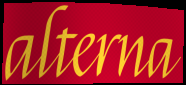
alterna